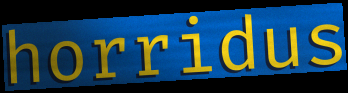
horridus